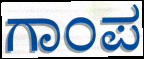
ಗಾಂಪ